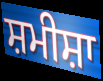
ਸ਼ਮੀਸ਼ਾ